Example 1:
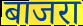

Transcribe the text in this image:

बाजरा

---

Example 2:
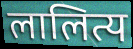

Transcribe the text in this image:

लालित्य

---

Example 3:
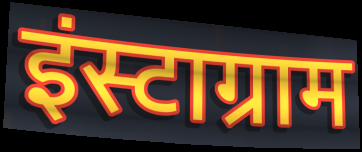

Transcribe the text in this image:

इंस्टाग्राम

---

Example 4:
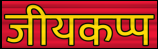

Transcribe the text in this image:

जीयकप्प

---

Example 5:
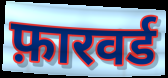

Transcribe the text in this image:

फ़ारवर्ड